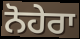
ਨੋਹੇਰਾ